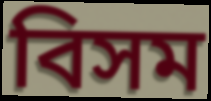
বিসম